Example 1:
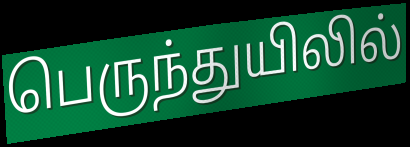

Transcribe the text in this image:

பெருந்துயிலில்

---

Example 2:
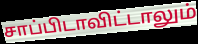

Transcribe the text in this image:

சாப்பிடாவிட்டாலும்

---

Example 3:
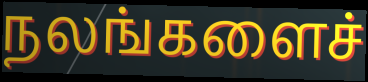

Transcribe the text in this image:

நலங்களைச்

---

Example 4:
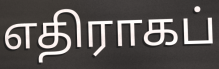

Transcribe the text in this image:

எதிராகப்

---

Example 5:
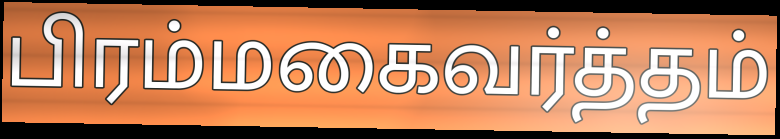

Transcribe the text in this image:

பிரம்மகைவர்த்தம்